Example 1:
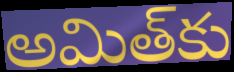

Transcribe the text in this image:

అమిత్‌కు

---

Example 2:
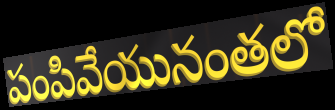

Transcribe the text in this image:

పంపివేయునంతలో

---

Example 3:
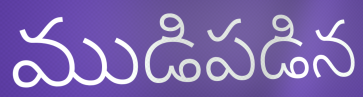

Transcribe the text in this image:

ముడిపడిన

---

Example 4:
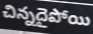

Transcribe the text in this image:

చిన్నదైపోయి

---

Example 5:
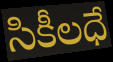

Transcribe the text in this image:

సికీలధే